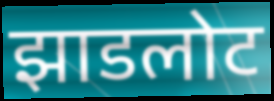
झाडलोट